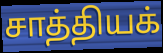
சாத்தியக்